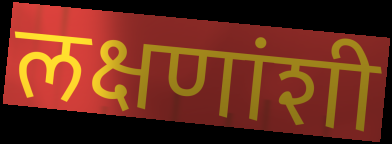
लक्षणांशी